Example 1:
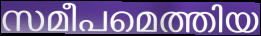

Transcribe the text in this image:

സമീപമെത്തിയ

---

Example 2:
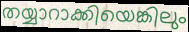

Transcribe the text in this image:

തയ്യാറാക്കിയെങ്കിലും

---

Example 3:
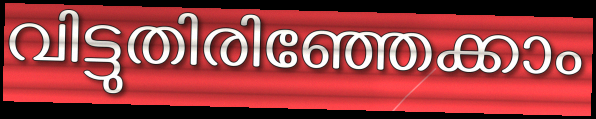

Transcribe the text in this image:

വിട്ടുതിരിഞ്ഞേക്കാം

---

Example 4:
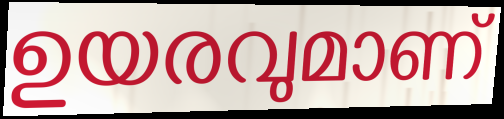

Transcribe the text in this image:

ഉയരവുമാണ്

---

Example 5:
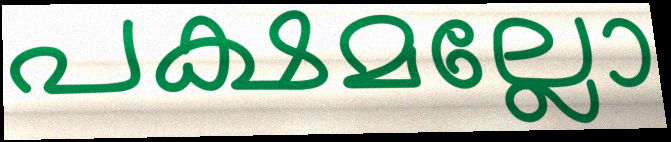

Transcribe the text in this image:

പക്ഷമല്ലോ